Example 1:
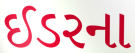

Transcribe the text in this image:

ઈડરના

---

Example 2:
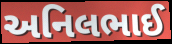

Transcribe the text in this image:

અનિલભાઈ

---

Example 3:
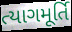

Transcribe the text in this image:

ત્યાગમૂર્તિ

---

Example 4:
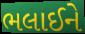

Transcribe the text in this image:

ભલાઈને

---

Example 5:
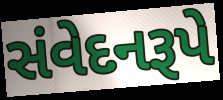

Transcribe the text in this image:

સંવેદનરૂપે